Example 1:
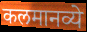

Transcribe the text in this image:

कलमानव्ये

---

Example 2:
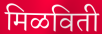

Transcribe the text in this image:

मिळविती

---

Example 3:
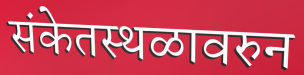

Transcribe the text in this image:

संकेतस्थळावरुन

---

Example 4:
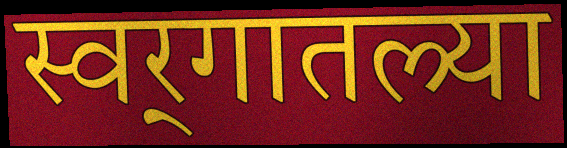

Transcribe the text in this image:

स्वर्गातल्या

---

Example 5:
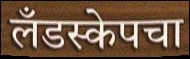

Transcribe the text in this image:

लँडस्केपचा